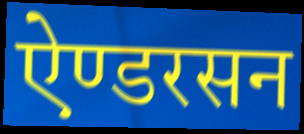
ऐण्डरसन